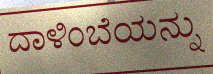
ದಾಳಿಂಬೆಯನ್ನು